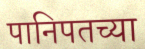
पानिपतच्या